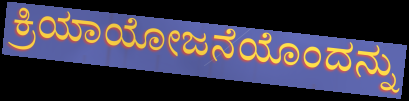
ಕ್ರಿಯಾಯೋಜನೆಯೊಂದನ್ನು